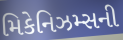
મિકેનિઝમ્સની